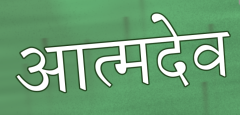
आत्मदेव